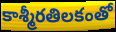
కాశ్మీరతిలకంతో